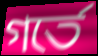
গর্তে